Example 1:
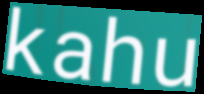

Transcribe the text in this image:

kahu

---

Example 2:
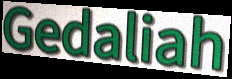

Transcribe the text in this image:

Gedaliah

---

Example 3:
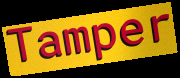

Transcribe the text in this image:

Tamper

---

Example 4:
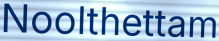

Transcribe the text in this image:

Noolthettam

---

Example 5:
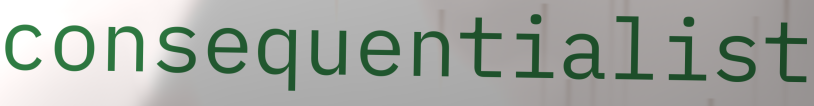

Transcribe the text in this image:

consequentialist